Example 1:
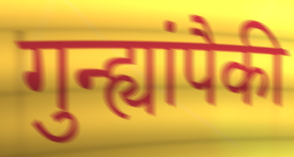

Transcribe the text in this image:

गुन्ह्यांपैकी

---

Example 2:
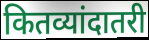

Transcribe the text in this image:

कितव्यांदातरी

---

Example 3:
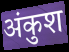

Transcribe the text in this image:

अंकुश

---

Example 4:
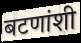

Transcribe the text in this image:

बटणांशी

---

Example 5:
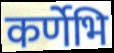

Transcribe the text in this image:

कर्णेभि